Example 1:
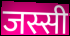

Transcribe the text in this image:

जस्सी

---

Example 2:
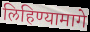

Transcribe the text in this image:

लिहिण्यामागे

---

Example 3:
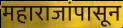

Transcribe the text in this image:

महाराजांपासून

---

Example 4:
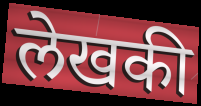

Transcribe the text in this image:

लेखकी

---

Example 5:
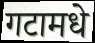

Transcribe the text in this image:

गटामधे